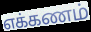
எக்கணம்